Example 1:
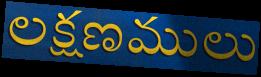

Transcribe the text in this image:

లక్షణములు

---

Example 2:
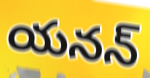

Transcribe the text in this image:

యనన్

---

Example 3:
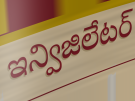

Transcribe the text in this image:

ఇన్విజిలేటర్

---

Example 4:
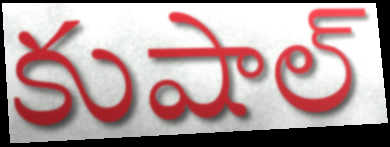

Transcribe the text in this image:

కుషాల్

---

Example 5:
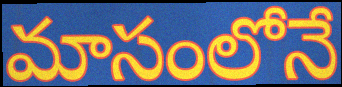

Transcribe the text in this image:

మాసంలోనే